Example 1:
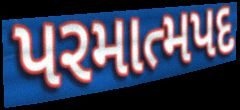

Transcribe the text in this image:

પરમાત્મપદ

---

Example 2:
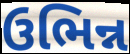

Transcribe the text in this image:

ઉભિન્ન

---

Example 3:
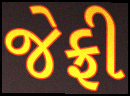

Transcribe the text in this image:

જેફ્રી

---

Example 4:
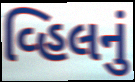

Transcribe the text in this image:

વ્હિલનું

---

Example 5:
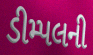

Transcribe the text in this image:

ડીમ્પલની